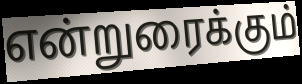
என்றுரைக்கும்